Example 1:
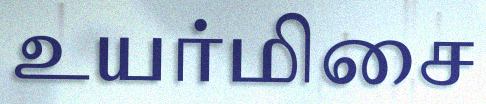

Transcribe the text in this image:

உயர்மிசை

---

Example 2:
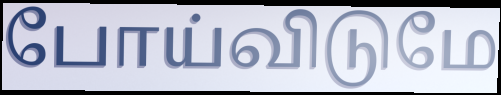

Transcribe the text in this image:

போய்விடுமே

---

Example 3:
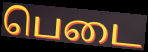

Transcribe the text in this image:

பெடை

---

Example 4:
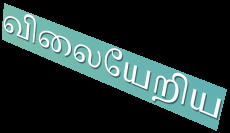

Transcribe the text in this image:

விலையேறிய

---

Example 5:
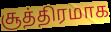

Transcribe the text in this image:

சூத்திரமாக